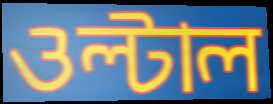
ওল্টাল